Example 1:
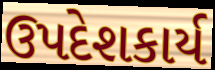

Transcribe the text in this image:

ઉપદેશકાર્ય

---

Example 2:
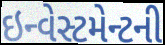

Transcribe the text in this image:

ઇન્વેસ્ટમેન્ટની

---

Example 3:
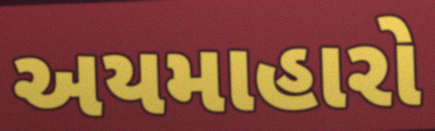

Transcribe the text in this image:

અયમાહારો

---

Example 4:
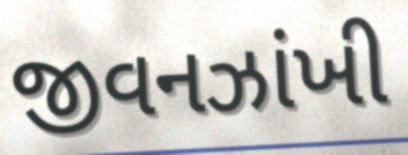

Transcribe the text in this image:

જીવનઝાંખી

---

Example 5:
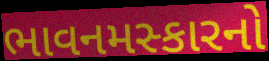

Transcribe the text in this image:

ભાવનમસ્કારનો